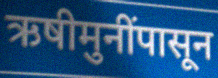
ऋषीमुनींपासून